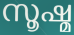
സൂഷ്മ